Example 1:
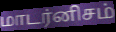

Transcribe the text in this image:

மாடர்னிசம்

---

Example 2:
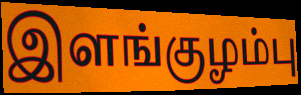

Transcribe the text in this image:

இளங்குழம்பு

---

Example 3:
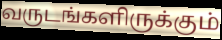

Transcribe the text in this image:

வருடங்களிருக்கும்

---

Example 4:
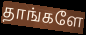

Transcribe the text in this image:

தாங்களே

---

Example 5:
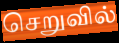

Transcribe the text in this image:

செறுவில்